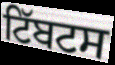
ਟਿੱਬਟਸ